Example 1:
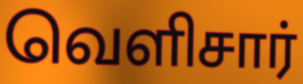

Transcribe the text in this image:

வெளிசார்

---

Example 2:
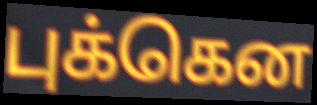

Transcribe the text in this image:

புக்கென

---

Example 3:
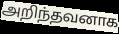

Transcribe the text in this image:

அறிந்தவனாக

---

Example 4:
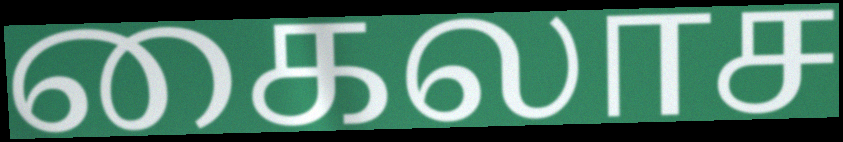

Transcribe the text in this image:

கைலாச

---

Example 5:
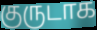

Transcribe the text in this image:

குருடாக